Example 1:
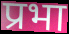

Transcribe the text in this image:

प्रभा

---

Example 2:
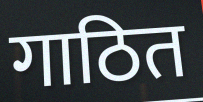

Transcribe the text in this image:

गाठित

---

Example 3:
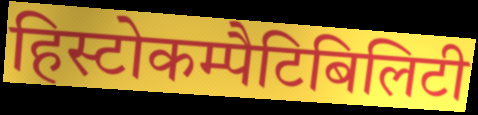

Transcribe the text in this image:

हिस्टोकम्पैटिबिलिटी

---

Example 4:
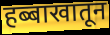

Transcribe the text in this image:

हब्बाखातून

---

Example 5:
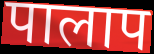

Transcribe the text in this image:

पालाप